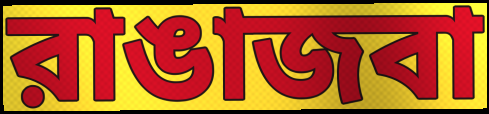
রাঙাজবা